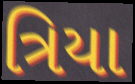
ત્રિયા